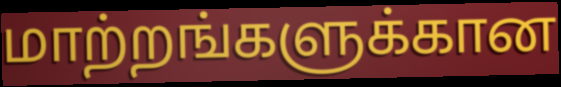
மாற்றங்களுக்கான